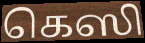
கெஸி